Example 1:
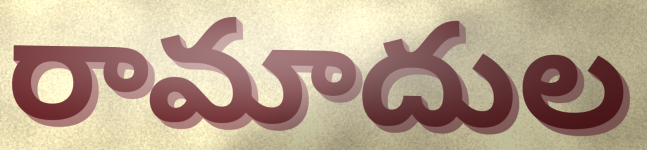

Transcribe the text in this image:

రామాదుల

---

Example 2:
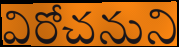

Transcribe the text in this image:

విరోచనుని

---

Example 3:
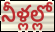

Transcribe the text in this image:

నీళ్లల్లో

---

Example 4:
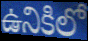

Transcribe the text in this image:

ఉనికిలో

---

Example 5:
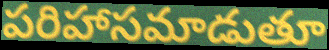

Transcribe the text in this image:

పరిహాసమాడుతూ